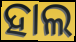
ହାଲ